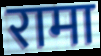
रामा